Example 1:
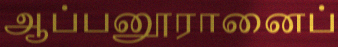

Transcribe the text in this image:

ஆப்பனூரானைப்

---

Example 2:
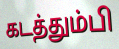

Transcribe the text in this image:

கடத்தும்பி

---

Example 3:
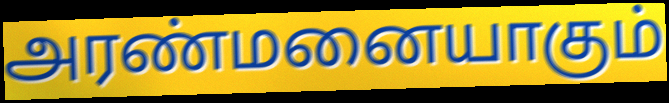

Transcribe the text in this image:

அரண்மனையாகும்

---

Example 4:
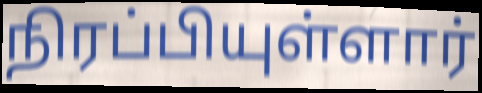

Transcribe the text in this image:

நிரப்பியுள்ளார்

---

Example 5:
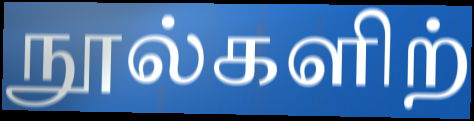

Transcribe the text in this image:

நூல்களிற்